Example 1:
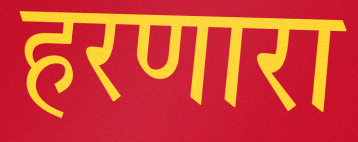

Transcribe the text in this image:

हरणारा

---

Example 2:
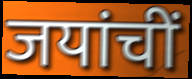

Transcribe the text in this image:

जयांचीं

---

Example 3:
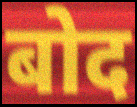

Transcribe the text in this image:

बोद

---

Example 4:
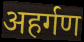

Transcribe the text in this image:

अहर्गण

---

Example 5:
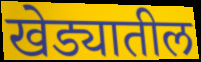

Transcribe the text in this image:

खेड्यातील